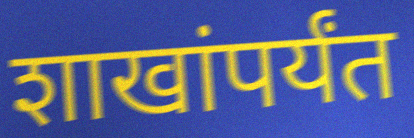
शाखांपर्यंत